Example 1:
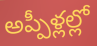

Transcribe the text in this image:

అప్పీళ్లల్లో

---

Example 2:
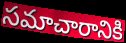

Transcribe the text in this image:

సమాచారానికి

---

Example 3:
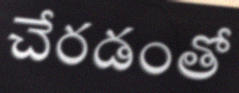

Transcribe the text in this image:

చేరడంతో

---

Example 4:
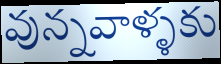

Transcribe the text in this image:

వున్నవాళ్ళకు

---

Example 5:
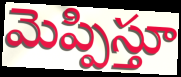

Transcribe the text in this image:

మెప్పిస్తూ